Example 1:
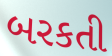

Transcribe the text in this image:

બરકતી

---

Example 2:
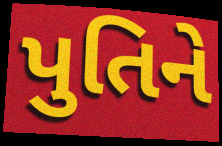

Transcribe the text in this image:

પુતિને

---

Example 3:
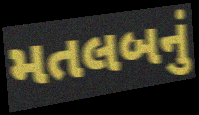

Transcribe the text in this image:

મતલબનું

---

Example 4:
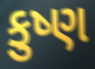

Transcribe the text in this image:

કુષ્ણ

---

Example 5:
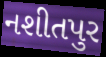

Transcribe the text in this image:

નશીતપુર